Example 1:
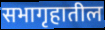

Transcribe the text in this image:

सभागृहातील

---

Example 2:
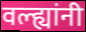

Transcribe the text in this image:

वल्ह्यांनी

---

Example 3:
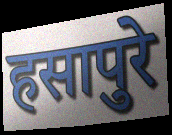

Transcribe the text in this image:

हसापुरे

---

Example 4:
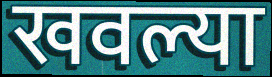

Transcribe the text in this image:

खवल्या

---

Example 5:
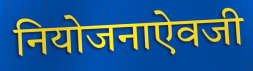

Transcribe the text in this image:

नियोजनाऐवजी